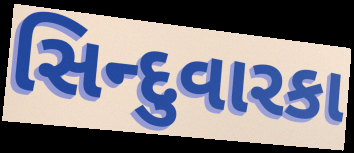
સિન્દુવારકા